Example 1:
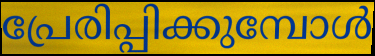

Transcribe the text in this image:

പ്രേരിപ്പിക്കുമ്പോൾ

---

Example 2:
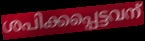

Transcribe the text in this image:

ശപിക്കപ്പെട്ടവന്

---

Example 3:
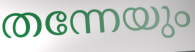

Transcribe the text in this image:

തന്നേയും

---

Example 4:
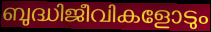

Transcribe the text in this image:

ബുദ്ധിജീവികളോടും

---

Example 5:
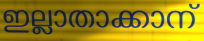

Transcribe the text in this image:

ഇല്ലാതാക്കാന്